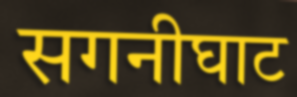
सगनीघाट